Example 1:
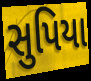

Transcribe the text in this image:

સુપિયા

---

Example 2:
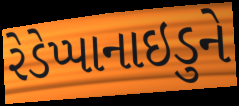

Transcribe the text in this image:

રેડેપ્પાનાઇડુને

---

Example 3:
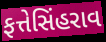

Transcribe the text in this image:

ફત્તેસિંહરાવ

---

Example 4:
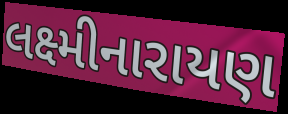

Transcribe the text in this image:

લક્ષ્મીનારાયણ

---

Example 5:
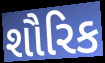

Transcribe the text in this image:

શૌરિક